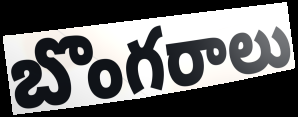
బొంగరాలు